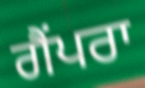
ਗੈਂਪਰਾ